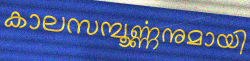
കാലസമ്പൂൎണ്ണനുമായി